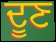
ਦੂਣ